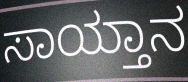
ಸಾಯ್ತಾನ